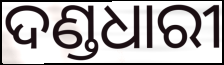
ଦଣ୍ଡଧାରୀ